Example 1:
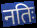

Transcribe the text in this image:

नतिः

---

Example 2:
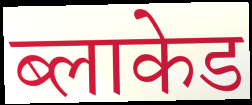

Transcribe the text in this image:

ब्लाकेड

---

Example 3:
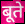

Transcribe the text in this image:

बूते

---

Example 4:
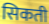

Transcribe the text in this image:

सिकती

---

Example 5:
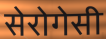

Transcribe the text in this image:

सेरोगेसी